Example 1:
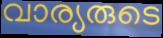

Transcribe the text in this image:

വാര്യരുടെ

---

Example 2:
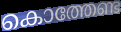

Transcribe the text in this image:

കൊത്തേണ്ട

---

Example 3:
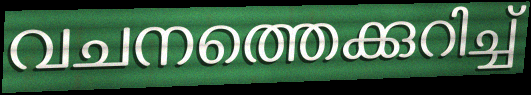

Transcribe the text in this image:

വചനത്തെക്കുറിച്ച്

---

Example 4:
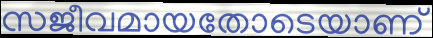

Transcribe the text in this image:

സജീവമായതോടെയാണ്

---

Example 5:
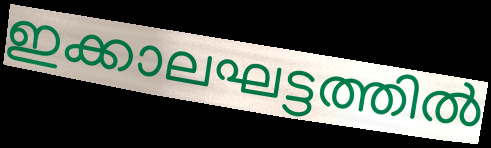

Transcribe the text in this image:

ഇക്കാലഘട്ടത്തിൽ